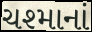
ચશ્માનાં